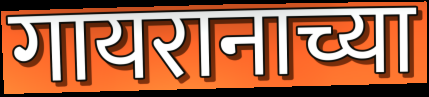
गायरानाच्या